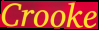
Crooke